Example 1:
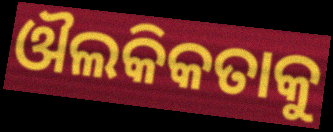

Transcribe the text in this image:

ଔଲକିକତାକୁ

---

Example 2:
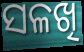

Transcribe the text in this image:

ସଳଖି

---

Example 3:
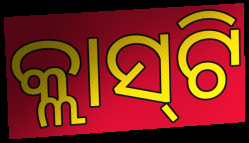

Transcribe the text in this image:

କ୍ଲାସ୍‍ଟି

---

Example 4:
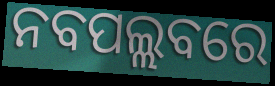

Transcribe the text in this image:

ନବପଲ୍ଲବରେ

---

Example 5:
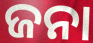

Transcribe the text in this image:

ଜନା